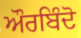
ਔਰਬਿੰਦੋ